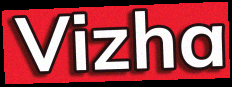
Vizha